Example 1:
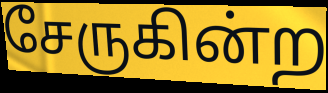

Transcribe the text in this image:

சேருகின்ற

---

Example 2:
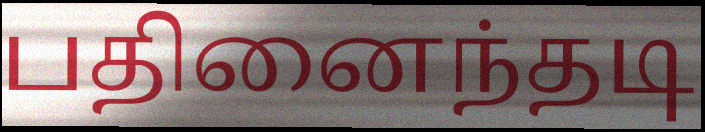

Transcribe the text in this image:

பதினைந்தடி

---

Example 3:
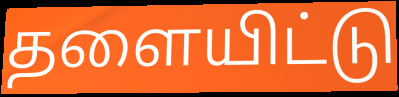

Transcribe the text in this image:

தளையிட்டு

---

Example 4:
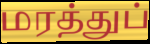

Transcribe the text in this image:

மரத்துப்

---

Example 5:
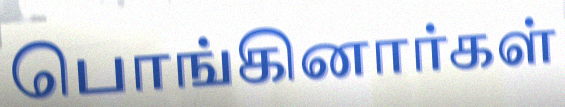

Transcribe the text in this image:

பொங்கினார்கள்